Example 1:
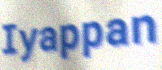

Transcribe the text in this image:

Iyappan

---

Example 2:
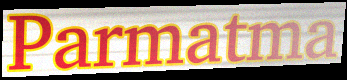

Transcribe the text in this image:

Parmatma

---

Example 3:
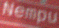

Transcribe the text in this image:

Nempu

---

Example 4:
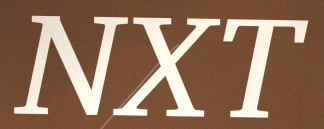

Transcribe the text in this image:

NXT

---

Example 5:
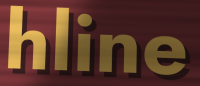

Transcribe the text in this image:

hline